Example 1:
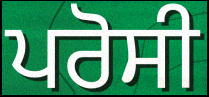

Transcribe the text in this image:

ਪਰੋਸੀ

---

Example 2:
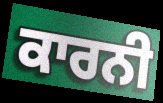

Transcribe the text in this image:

ਕਾਰਨੀ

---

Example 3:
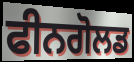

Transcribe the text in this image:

ਫੀਨਗੋਲਡ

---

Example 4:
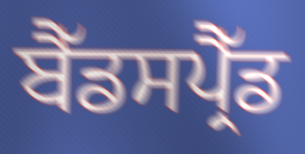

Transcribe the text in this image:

ਬੈੱਡਸਪ੍ਰੈੱਡ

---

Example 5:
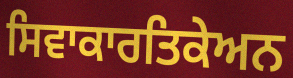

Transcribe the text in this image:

ਸਿਵਾਕਾਰਤਿਕੇਅਨ